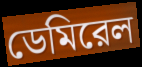
ডেমিরেল